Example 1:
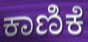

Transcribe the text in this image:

ಕಾಣಿಕೆ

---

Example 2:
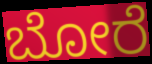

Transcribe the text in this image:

ಬೋರೆ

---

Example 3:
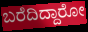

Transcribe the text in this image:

ಬರೆದಿದ್ದಾರೋ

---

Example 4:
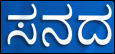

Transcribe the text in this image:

ಸನದ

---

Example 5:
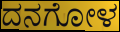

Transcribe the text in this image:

ದನಗೋಳ